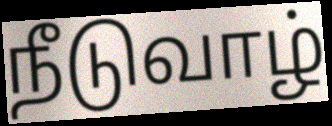
நீடுவாழ்